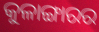
କୁଳାଙ୍ଗାରର